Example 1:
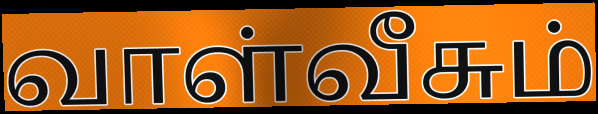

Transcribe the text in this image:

வாள்வீசும்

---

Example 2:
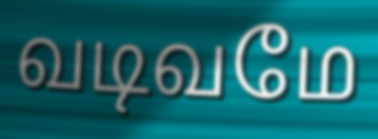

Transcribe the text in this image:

வடிவமே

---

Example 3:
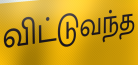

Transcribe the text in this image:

விட்டுவந்த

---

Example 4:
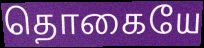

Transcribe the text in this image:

தொகையே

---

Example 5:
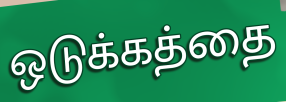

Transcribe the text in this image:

ஒடுக்கத்தை